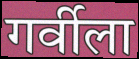
गर्वीला